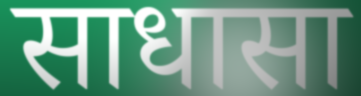
साधासा